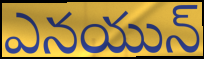
ఎనయున్